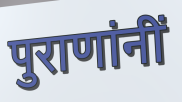
पुराणांनीं